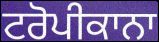
ਟਰੋਪੀਕਾਨਾ